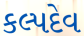
કલ્પદેવ